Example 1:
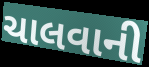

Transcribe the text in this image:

ચાલવાની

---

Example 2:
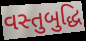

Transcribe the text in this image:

વસ્તુબુદ્ધિ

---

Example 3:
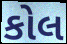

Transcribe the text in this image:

કોલ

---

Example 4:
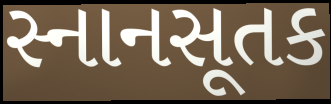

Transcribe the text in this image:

સ્નાનસૂતક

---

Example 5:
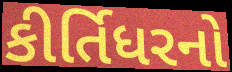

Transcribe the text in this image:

કીર્તિધરનો